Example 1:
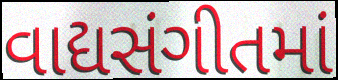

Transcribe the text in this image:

વાદ્યસંગીતમાં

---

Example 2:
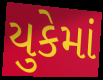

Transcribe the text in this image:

યુકેમાં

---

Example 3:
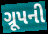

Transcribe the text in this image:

ગ્રૂપની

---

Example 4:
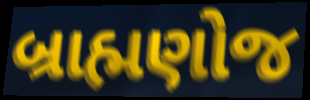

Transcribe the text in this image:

બ્રાહ્મણોજ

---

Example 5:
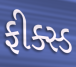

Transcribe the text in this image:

ફીક્સ્ડ